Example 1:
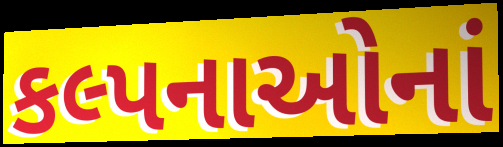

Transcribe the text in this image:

કલ્પનાઓનાં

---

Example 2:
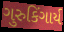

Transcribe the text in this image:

ગુરુકિંગાર્ય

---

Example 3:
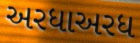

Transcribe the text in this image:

અરધાઅરધ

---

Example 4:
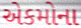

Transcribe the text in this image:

એકમોના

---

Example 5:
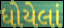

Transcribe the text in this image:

ધોયેલાં